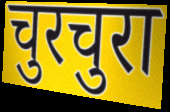
चुरचुरा